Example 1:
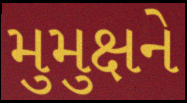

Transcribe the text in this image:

મુમુક્ષને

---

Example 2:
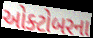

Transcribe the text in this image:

ઓક્ટોબરના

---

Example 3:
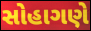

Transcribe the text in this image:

સોહાગણે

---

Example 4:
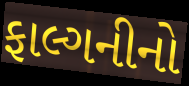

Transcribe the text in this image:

ફાલ્ગનીનો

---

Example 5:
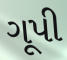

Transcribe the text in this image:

ગૂપી